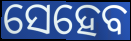
ସେହେବ